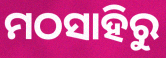
ମଠସାହିରୁ